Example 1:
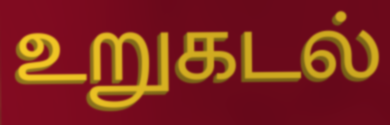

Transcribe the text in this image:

உறுகடல்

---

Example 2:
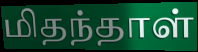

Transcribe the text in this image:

மிதந்தாள்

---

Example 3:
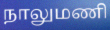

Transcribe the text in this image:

நாலுமணி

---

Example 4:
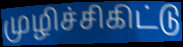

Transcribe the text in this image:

முழிச்சிகிட்டு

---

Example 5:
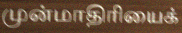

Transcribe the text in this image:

முன்மாதிரியைக்